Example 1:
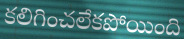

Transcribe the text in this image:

కలిగించలేకపోయింది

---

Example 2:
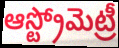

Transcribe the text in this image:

ఆస్ట్రోమెట్రీ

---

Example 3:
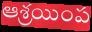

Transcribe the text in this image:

ఆశ్రయింప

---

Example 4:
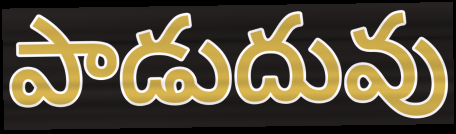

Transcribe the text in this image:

పాడుదువు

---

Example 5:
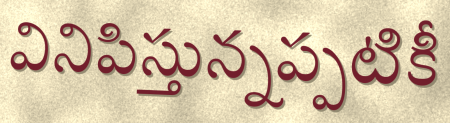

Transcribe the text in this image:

వినిపిస్తున్నప్పటికీ